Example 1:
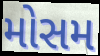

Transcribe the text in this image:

મોસમ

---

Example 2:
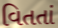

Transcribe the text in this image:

વિતતાં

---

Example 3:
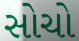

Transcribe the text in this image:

સોચો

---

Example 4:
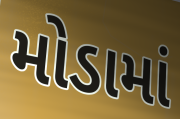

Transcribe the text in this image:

મોડામાં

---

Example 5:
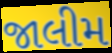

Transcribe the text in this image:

જાલીમ